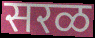
सरळ